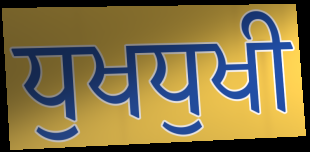
ਧੁਖਧੁਖੀ